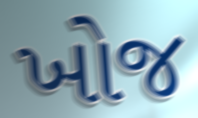
ખોજ